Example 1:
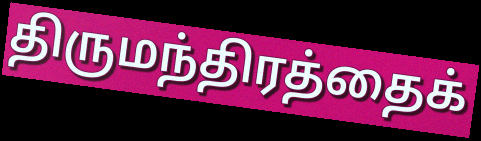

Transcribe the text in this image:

திருமந்திரத்தைக்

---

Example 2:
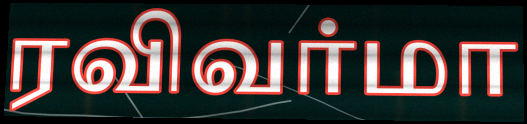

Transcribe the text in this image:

ரவிவர்மா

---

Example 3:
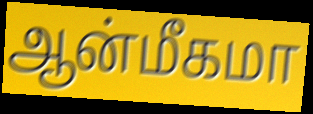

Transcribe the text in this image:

ஆன்மீகமா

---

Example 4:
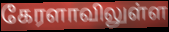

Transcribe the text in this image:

கேரளாவிலுள்ள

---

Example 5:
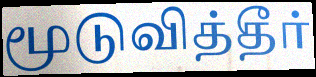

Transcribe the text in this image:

மூடுவித்தீர்